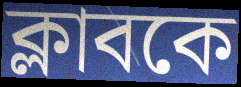
ক্লাবকে